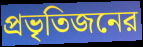
প্রভৃতিজনের